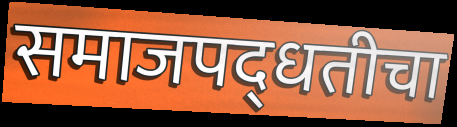
समाजपद्धतीचा